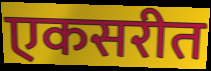
एकसरीत